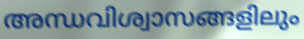
അന്ധവിശ്വാസങ്ങളിലും